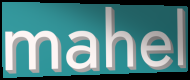
mahel